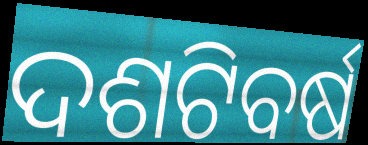
ଦଶଟିବର୍ଷ